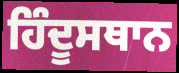
ਹਿੰਦੂਸਥਾਨ